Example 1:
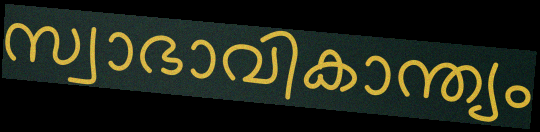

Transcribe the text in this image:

സ്വാഭാവികാന്ത്യം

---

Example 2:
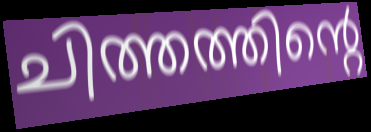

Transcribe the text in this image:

ചിത്തത്തിന്റെ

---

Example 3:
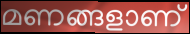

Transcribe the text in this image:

മണങ്ങളാണ്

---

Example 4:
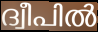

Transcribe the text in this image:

ദ്വീപിൽ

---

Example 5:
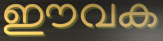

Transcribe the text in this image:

ഈവക